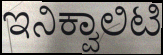
ಇನಿಕ್ವಾಲಿಟಿ